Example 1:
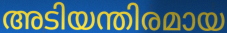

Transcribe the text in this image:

അടിയന്തിരമായ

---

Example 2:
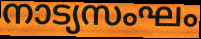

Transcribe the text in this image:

നാട്യസംഘം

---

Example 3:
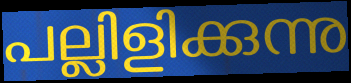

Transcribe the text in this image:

പല്ലിളിക്കുന്നു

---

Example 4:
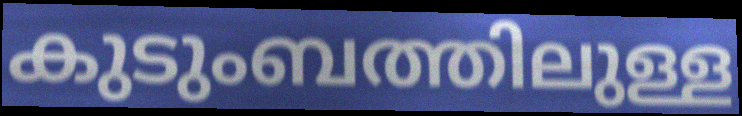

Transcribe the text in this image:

കുടുംബത്തിലുള്ള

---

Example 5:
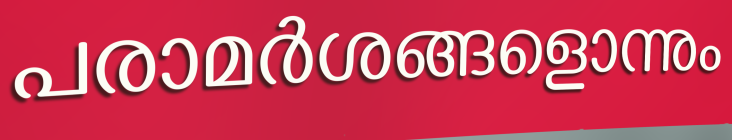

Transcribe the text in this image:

പരാമർശങ്ങളൊന്നും